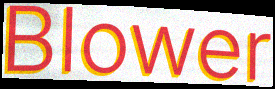
Blower